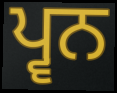
ਪ੍ਵਨ